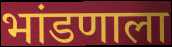
भांडणाला